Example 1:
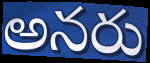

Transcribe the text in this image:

అనరు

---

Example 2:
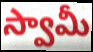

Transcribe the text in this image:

స్వామీ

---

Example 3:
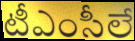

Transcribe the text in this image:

టీఎంసీలే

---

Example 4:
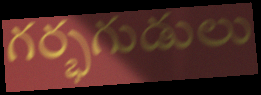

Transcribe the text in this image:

గర్భగుడులు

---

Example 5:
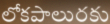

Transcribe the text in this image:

లోకపాలురకు